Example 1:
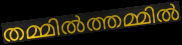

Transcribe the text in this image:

തമ്മിൽത്തമ്മിൽ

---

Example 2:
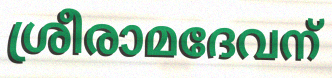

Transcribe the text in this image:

ശ്രീരാമദേവന്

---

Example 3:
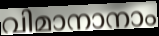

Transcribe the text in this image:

വിമാനാനാം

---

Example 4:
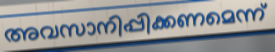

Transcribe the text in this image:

അവസാനിപ്പിക്കണമെന്ന്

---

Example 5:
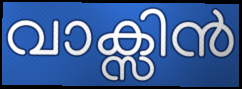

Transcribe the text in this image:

വാക്സിൻ